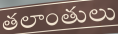
తలాంతులు